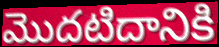
మొదటిదానికి